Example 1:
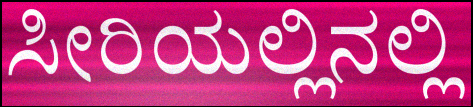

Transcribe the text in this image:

ಸೀರಿಯಲ್ಲಿನಲ್ಲಿ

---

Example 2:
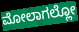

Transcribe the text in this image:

ಮೋಲಾಗಲ್ಲೋ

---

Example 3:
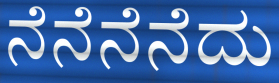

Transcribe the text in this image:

ನೆನೆನೆನೆದು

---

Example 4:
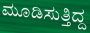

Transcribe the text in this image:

ಮೂಡಿಸುತ್ತಿದ್ದ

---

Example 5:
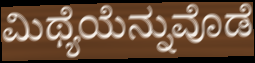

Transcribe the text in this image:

ಮಿಥ್ಯೆಯೆನ್ನುವೊಡೆ